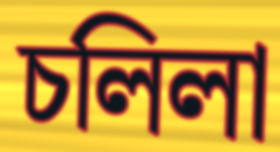
চলিলা